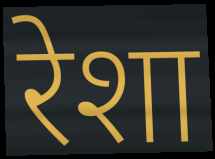
रेशा